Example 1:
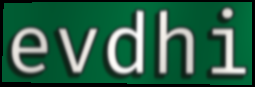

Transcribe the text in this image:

evdhi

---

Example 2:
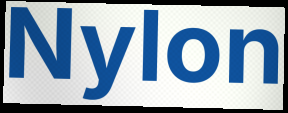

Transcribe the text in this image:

Nylon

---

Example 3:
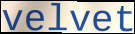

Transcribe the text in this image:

velvet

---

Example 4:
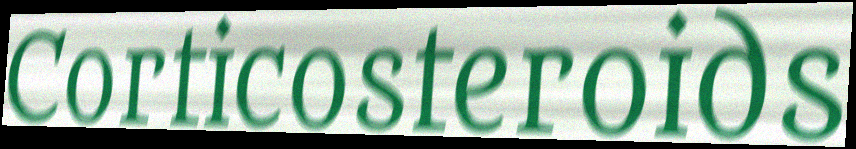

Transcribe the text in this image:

Corticosteroids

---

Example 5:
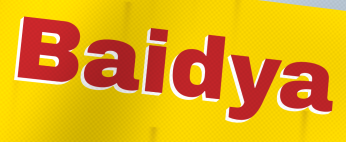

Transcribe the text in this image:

Baidya